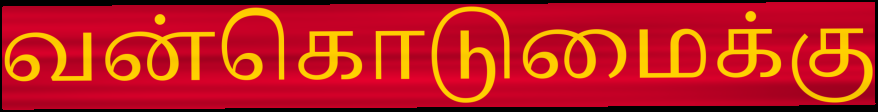
வன்கொடுமைக்கு